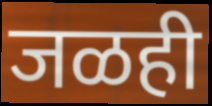
जळही